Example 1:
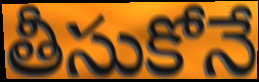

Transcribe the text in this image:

తీసుకోనే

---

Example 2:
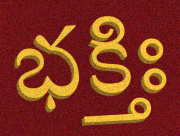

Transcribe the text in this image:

భక్తిః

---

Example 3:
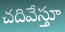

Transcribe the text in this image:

చదివేస్తూ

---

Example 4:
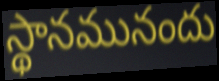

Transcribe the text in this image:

స్థానమునందు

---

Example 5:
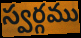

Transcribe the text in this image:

స్వర్గము